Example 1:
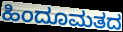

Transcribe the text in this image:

ಹಿಂದೂಮತದ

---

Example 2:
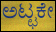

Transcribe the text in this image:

ಅಟ್ಟಕೇ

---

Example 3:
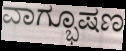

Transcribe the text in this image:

ವಾಗ್ಭೂಷಣ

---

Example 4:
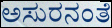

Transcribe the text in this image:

ಅಸುರನಂತೆ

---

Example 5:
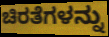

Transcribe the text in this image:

ಚಿರತೆಗಳನ್ನು